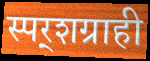
स्पर्शग्राही